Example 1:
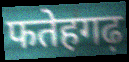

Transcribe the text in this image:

फतेहगढ़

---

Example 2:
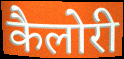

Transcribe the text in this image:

कैलोरी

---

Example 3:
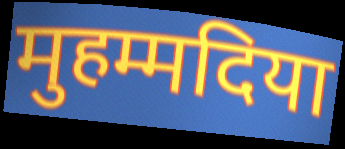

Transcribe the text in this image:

मुहम्मदिया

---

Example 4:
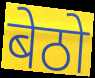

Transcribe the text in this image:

बेठो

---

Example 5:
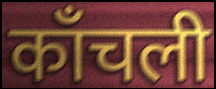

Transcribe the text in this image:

काँचली